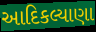
આદિકલ્યાણા